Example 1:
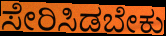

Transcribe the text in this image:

ಸೇರಿಸಿಡಬೇಕು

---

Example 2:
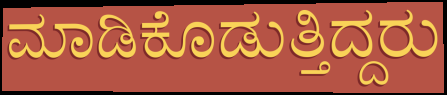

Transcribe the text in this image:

ಮಾಡಿಕೊಡುತ್ತಿದ್ದರು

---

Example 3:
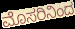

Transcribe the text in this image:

ಮೊಸರಿನಿಂದ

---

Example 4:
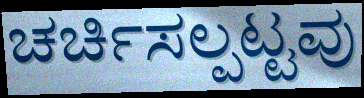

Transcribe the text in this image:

ಚರ್ಚಿಸಲ್ಪಟ್ಟವು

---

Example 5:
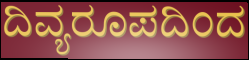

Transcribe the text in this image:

ದಿವ್ಯರೂಪದಿಂದ